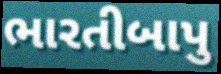
ભારતીબાપુ